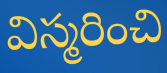
విస్మరించి